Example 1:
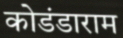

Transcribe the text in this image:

कोडंडाराम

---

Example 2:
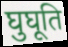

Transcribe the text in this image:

घुघूति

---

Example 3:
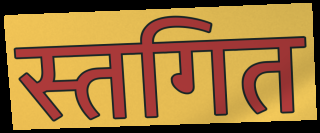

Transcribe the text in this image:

स्तगित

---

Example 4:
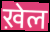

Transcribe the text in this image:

ख़ेल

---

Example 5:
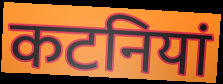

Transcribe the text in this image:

कटनियां